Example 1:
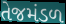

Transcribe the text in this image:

તેજમંડળ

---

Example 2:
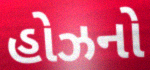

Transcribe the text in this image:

હોઝનો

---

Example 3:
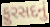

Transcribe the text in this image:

ફુરસદનું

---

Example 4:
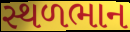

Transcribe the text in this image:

સ્થળભાન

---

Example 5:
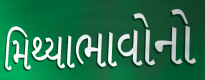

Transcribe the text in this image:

મિથ્યાભાવોનો